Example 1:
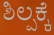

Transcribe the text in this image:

ಶಿಲ್ಪಕ್ಕೆ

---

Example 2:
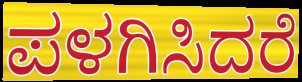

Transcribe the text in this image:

ಪಳಗಿಸಿದರೆ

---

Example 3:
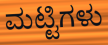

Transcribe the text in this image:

ಮಟ್ಟಿಗಳು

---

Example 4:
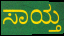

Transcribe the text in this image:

ಸಾಯ್ತ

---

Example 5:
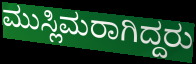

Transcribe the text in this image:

ಮುಸ್ಲಿಮರಾಗಿದ್ದರು